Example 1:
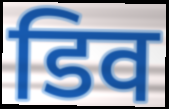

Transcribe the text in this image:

डिव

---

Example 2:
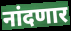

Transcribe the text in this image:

नांदणार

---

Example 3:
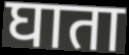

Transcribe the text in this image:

घाता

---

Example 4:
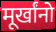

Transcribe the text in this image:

मूर्खांनो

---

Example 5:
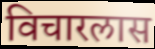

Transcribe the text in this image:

विचारलास